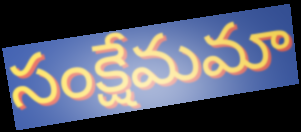
సంక్షేమమా